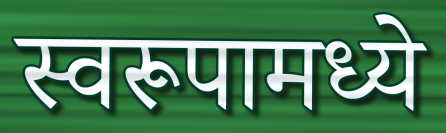
स्वरूपामध्ये